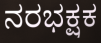
ನರಭಕ್ಷಕ